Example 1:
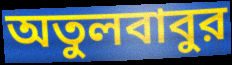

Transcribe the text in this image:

অতুলবাবুর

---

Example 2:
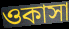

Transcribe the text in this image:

ওকাসা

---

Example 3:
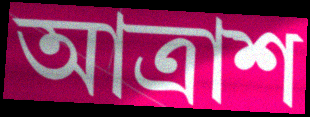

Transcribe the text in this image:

আত্রাশ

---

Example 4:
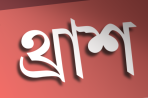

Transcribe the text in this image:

থ্রাশ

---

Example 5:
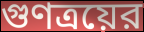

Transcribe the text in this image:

গুণত্রয়ের